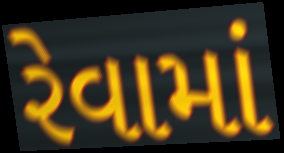
રેવામાં